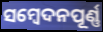
ସମ୍ବେଦନପୂର୍ଣ୍ଣ